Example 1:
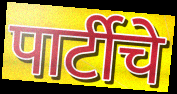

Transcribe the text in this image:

पार्टीचे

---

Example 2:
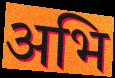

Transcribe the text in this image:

अभि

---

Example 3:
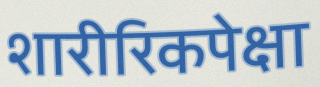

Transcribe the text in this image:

शारीरिकपेक्षा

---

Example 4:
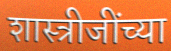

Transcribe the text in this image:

शास्त्रीजींच्या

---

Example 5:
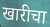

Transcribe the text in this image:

खारीचा